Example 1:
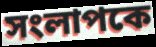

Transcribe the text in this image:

সংলাপকে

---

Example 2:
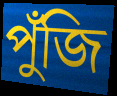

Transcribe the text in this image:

পুঁজি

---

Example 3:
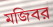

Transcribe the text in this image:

মজিবর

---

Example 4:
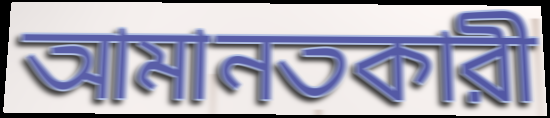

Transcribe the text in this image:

আমানতকারী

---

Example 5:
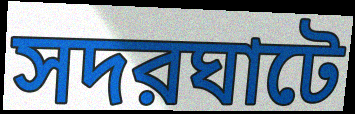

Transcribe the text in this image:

সদরঘাটে